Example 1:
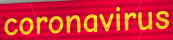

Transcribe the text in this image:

coronavirus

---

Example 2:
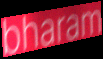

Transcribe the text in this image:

bharam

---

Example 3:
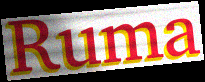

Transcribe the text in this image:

Ruma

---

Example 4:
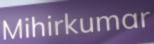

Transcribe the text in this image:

Mihirkumar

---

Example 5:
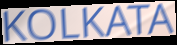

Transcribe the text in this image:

KOLKATA